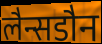
लैन्सडौन